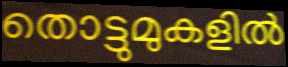
തൊട്ടുമുകളിൽ